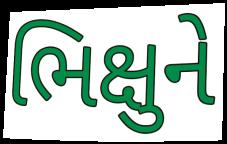
ભિક્ષુને